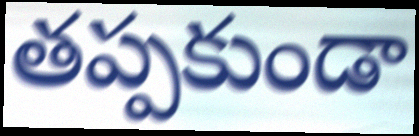
తప్పకుండా